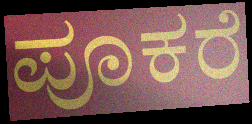
ಪೂಕರೆ